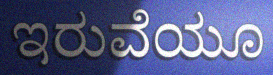
ಇರುವೆಯೂ